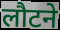
लौटने